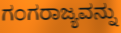
ಗಂಗರಾಜ್ಯವನ್ನು